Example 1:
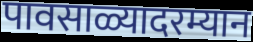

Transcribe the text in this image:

पावसाळ्यादरम्यान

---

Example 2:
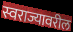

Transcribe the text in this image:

स्वराज्यावरील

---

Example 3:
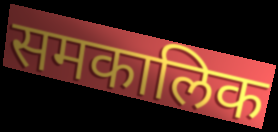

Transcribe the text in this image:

समकालिक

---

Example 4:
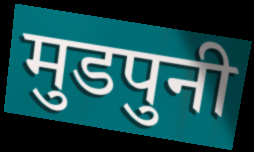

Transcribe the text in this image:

मुडपुनी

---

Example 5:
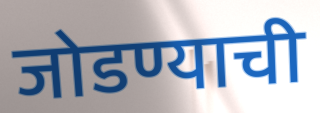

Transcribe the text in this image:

जोडण्याची